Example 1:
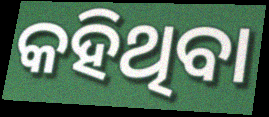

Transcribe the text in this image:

କହିଥିବା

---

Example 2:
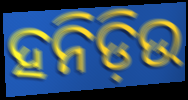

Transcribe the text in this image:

ହନିଡ଼ିଉ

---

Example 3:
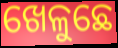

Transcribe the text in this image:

ଖେଳୁଛେ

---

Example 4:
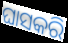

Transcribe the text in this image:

ଘାସକରି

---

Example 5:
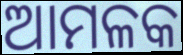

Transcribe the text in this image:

ଆମଳକ